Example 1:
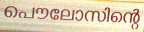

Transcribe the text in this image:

പൌലോസിന്റെ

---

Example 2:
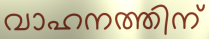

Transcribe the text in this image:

വാഹനത്തിന്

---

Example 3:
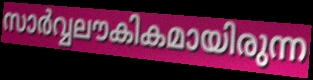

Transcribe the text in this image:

സാർവ്വലൗകികമായിരുന്ന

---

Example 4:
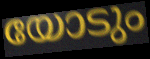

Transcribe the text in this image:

യോടും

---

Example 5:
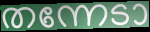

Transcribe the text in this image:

തന്നേടാ